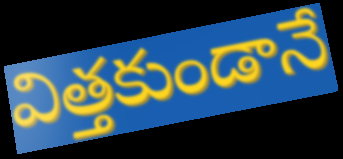
విత్తకుండానే